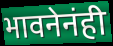
भावनेनंही